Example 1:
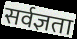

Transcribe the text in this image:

सर्वज्ञता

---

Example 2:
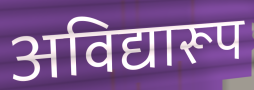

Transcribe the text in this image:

अविद्यारूप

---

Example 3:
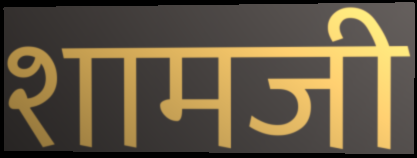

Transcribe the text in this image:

शामजी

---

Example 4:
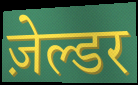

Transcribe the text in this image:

ज़ेल्डर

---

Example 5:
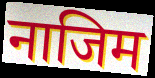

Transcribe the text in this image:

नाजिम